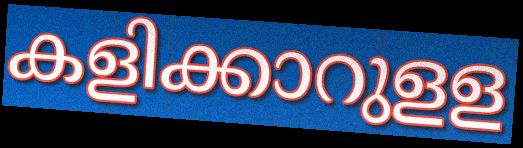
കളിക്കാറുളള